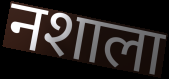
नशाला